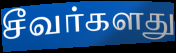
சீவர்களது